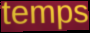
temps